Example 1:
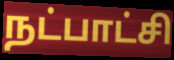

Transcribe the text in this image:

நட்பாட்சி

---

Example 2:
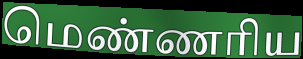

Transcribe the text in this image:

மெண்ணரிய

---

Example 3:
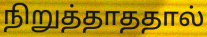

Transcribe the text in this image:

நிறுத்தாததால்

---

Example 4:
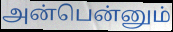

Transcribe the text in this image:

அன்பென்னும்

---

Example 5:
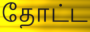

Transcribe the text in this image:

தோட்ட